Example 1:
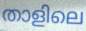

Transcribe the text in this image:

താളിലെ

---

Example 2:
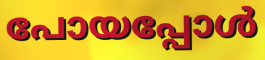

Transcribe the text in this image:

പോയപ്പോൾ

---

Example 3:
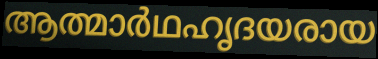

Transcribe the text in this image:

ആത്മാർഥഹൃദയരായ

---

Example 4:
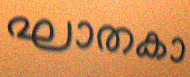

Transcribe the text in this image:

ഘാതകാ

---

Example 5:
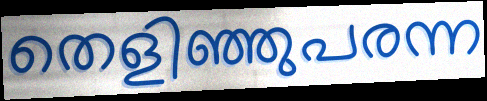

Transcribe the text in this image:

തെളിഞ്ഞുപരന്ന